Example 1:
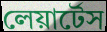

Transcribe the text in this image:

লেয়ার্টেস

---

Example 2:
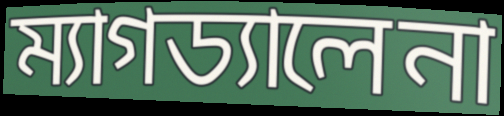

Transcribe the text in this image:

ম্যাগড্যালেনা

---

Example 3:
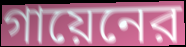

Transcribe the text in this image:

গায়েনের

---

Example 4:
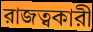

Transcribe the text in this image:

রাজত্বকারী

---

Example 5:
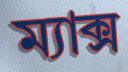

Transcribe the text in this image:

ম্যাক্স